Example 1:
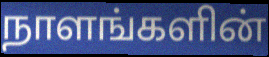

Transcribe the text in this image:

நாளங்களின்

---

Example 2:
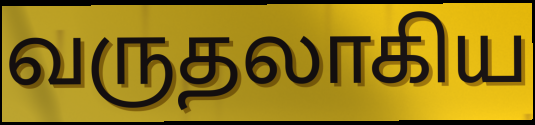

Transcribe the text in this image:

வருதலாகிய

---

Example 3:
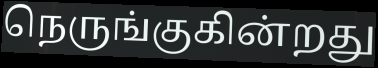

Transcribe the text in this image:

நெருங்குகின்றது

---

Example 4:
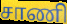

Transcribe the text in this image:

சாணி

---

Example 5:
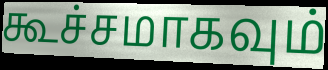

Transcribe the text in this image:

கூச்சமாகவும்